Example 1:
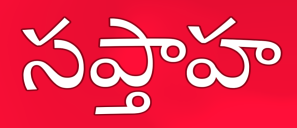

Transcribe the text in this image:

సప్తాహ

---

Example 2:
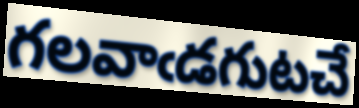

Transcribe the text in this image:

గలవాఁడగుటచే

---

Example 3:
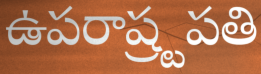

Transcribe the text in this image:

ఉపరాష్ర్టపతి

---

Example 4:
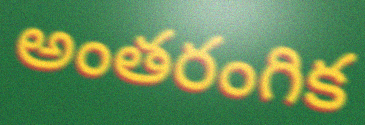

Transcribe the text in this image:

అంతరంగిక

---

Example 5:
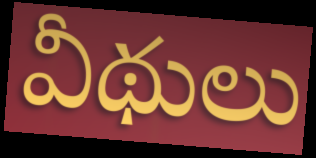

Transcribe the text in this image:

వీథులు